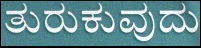
ತುರುಕುವುದು